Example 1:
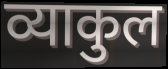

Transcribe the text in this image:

व्याकुल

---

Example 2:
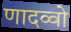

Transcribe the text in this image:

णादव्वो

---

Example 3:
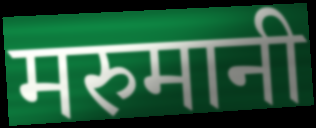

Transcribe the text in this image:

मरुमानी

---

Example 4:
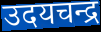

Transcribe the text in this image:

उदयचन्द्र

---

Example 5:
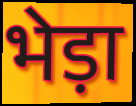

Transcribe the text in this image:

भेड़ा